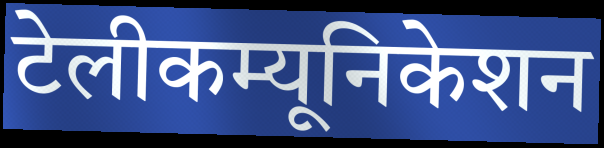
टेलीकम्यूनिकेशन